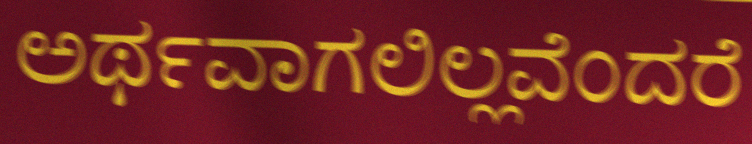
ಅರ್ಥವಾಗಲಿಲ್ಲವೆಂದರೆ